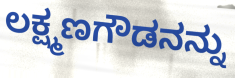
ಲಕ್ಷ್ಮಣಗೌಡನನ್ನು